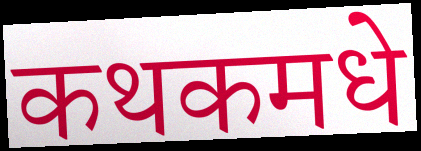
कथकमधे